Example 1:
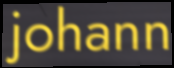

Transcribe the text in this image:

johann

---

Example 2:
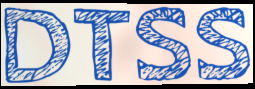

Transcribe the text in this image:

DTSS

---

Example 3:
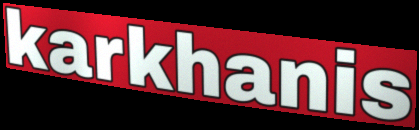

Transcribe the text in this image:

karkhanis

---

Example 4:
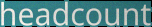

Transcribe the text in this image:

headcount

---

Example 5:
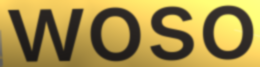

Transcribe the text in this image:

woso